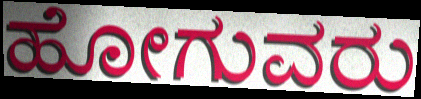
ಹೋಗುವರು